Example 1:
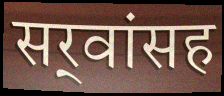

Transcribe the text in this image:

सर्वांसह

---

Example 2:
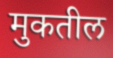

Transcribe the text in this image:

मुकतील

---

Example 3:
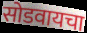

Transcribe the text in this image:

सोडवायचा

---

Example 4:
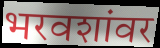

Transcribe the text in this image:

भरवशांवर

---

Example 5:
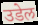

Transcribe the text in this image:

उडेल